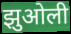
झुओली